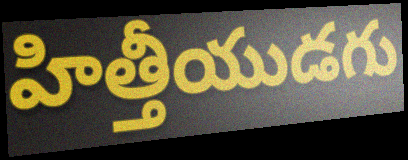
హిత్తీయుడగు